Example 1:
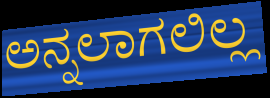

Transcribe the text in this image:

ಅನ್ನಲಾಗಲಿಲ್ಲ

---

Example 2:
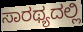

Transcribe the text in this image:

ಸಾರಥ್ಯದಲ್ಲಿ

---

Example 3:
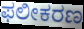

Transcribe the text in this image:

ಫಲೀಕರಣ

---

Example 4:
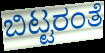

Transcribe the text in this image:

ಬಿಟ್ಟರಂತೆ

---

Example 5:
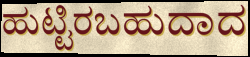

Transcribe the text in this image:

ಹುಟ್ಟಿರಬಹುದಾದ